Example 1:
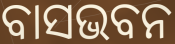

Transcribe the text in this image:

ବାସଭବନ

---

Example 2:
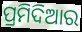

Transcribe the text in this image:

ପ୍ରମିଦିଆର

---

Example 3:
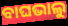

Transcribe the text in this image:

ବାଘଭାଲୁ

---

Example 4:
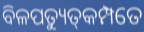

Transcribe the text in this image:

ବିଳପତ୍ୟୁତ୍‌କମ୍ପତେ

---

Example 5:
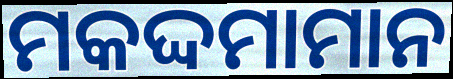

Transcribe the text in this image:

ମକଦ୍ଦମାମାନ